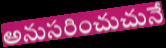
అనుసరించుచునే